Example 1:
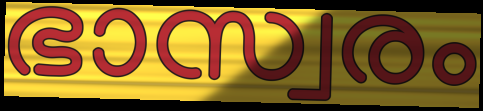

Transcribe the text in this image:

ഭാസ്വരം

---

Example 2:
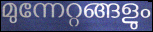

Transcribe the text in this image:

മുന്നേറ്റങ്ങളും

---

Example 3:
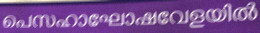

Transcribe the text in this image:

പെസഹാഘോഷവേളയിൽ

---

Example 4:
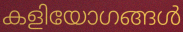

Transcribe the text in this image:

കളിയോഗങ്ങൾ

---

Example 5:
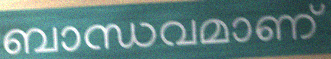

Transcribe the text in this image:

ബാന്ധവമാണ്